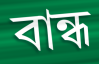
বান্ধ